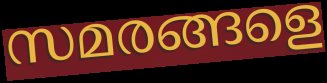
സമരങ്ങളെ